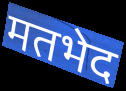
मतभेद